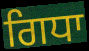
ਗਿਧਾ